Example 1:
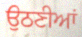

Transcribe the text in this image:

ਉਠਣੀਆਂ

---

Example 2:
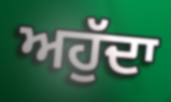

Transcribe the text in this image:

ਅਹੁੱਦਾ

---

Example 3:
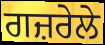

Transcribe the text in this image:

ਗਜ਼ਰੇਲੇ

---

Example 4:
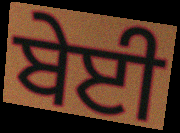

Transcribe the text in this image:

ਬੇਈ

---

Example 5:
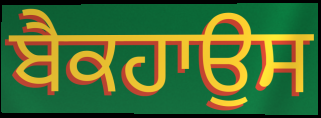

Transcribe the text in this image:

ਬੈਕਹਾਉਸ